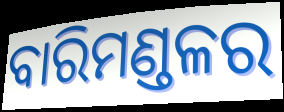
ବାରିମଣ୍ଡଳର